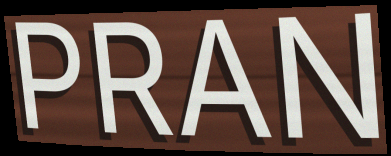
PRAN